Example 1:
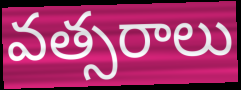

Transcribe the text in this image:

వత్సరాలు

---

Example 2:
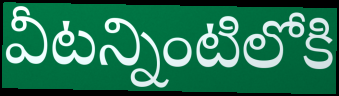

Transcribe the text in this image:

వీటన్నింటిలోకి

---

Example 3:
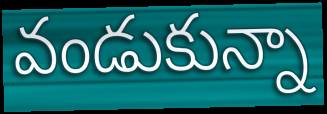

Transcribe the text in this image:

వండుకున్నా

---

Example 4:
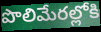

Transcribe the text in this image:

పొలిమేరల్లోకి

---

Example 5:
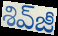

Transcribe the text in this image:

శివ్‌జీ